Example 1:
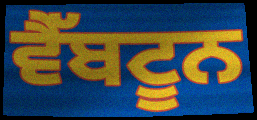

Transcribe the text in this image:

ਵੈੱਬਟੂਨ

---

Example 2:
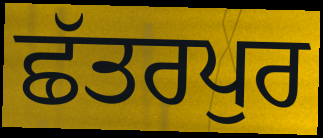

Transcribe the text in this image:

ਛੱਤਰਪੁਰ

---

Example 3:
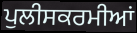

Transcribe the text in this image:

ਪੁਲੀਸਕਰਮੀਆਂ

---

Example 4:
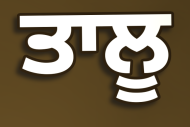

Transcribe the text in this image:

ਤਾਲੂ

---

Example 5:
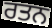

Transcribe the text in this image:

ਰਤਨ